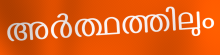
അർത്ഥത്തിലും